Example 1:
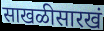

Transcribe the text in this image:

साखळीसारखं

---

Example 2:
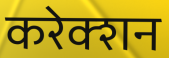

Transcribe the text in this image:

करेक्शन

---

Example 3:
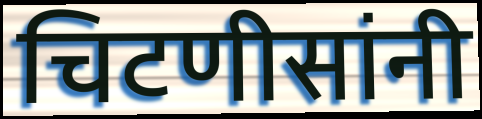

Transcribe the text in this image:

चिटणीसांनी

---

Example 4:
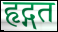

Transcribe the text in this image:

हृद्गत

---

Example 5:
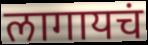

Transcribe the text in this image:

लागायचं